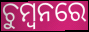
ଚୁମ୍ବନରେ